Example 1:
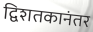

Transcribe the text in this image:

द्विशतकानंतर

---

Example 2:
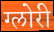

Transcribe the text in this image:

ग्लोरी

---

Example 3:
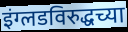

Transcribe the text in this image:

इंग्लडविरुद्धच्या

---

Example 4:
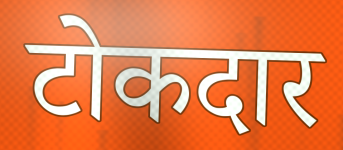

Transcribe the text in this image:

टोकदार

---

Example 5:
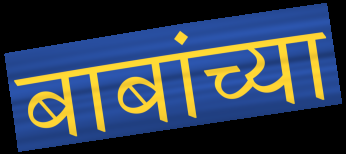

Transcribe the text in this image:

बाबांच्या